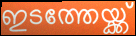
ഇടത്തേയ്ക്ക്